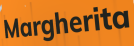
Margherita